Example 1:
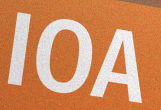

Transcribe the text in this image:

IOA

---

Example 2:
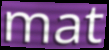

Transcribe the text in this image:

mat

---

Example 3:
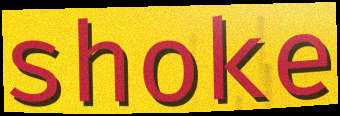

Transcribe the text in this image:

shoke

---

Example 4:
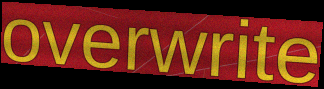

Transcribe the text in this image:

overwrite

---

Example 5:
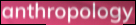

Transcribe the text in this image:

anthropology